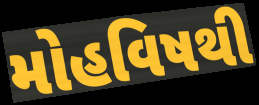
મોહવિષથી